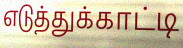
எடுத்துக்காட்டி